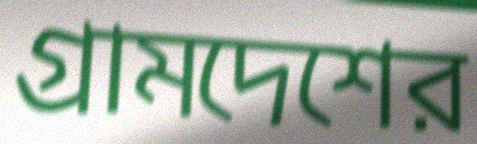
গ্রামদেশের